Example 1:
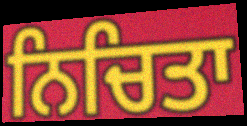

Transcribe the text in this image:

ਨਿਚਿਤਾ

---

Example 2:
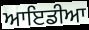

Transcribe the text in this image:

ਆਇਡੀਆ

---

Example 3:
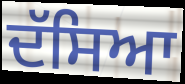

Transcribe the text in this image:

ਦੱਸਿਆ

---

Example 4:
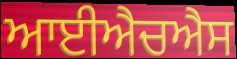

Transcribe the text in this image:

ਆਈਐਚਐਸ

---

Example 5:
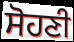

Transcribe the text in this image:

ਸੋਹਣੀ